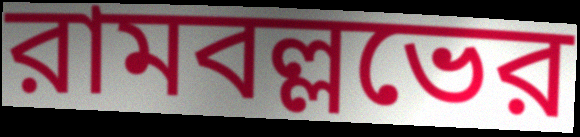
রামবল্লভের